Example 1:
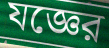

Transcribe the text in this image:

যজ্ঞের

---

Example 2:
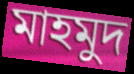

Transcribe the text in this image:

মাহমুদ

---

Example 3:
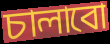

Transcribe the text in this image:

চালাবো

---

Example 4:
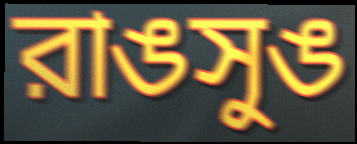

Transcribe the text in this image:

রাঙসুঙ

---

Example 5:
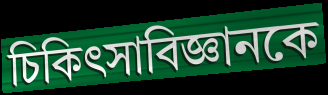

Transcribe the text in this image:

চিকিৎসাবিজ্ঞানকে